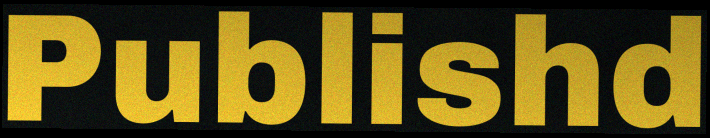
Publishd